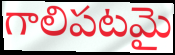
గాలిపటమై